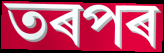
তৰপৰ